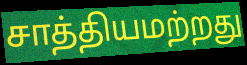
சாத்தியமற்றது